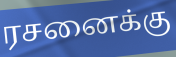
ரசனைக்கு